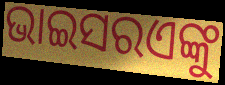
ଭାଇସରଏଙ୍କୁ